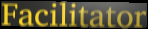
Facilitator